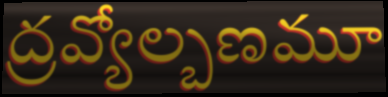
ద్రవ్యోల్బణమూ